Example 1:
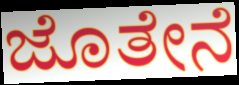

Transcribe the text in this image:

ಜೊತೇನೆ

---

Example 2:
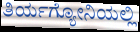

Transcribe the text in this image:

ತಿರ್ಯಗ್ಯೋನಿಯಲ್ಲಿ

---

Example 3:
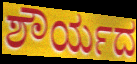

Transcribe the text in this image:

ಶೌರ್ಯದ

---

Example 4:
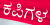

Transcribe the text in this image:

ಕಪಿಗಳ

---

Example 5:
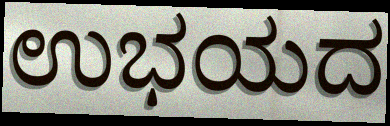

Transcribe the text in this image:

ಉಭಯದ